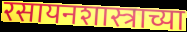
रसायनशास्त्राच्या